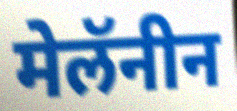
मेलॅनीन